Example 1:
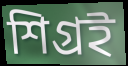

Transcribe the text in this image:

শিগ্রই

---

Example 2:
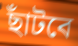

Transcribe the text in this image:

ছাঁটবে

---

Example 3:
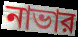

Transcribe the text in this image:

নাভার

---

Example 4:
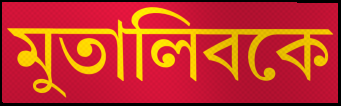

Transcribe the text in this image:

মুতালিবকে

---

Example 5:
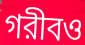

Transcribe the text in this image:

গরীবও